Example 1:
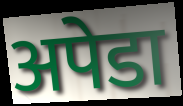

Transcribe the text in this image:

अपेडा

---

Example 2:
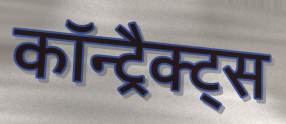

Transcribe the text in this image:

कॉन्ट्रैक्ट्स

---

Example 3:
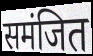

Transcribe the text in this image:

समंजित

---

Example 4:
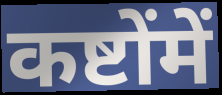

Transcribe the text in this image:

कष्टोंमें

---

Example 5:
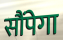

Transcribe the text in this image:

सौंपेगा